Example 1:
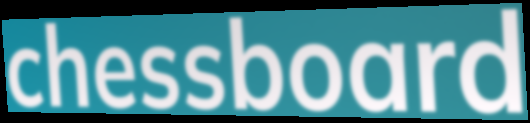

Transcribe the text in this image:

chessboard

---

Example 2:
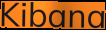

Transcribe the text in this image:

Kibana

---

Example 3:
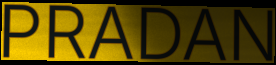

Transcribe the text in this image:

PRADAN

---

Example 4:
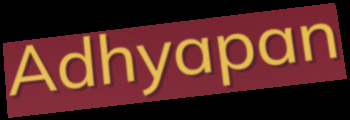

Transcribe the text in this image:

Adhyapan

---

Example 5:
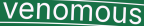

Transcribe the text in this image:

venomous